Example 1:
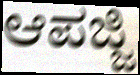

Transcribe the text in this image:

ಆಪಜ್ಜಿ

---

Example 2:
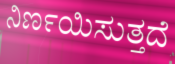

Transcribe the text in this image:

ನಿರ್ಣಯಿಸುತ್ತದೆ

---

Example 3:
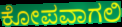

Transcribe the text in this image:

ಕೋಪವಾಗಲಿ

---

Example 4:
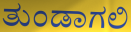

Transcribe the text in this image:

ತುಂಡಾಗಲಿ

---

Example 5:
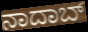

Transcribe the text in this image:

ನಾದಾಬ್